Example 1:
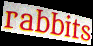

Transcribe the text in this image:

rabbits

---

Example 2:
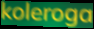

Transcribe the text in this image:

koleroga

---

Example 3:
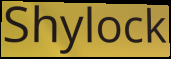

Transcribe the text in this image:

Shylock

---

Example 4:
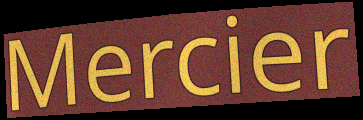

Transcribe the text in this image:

Mercier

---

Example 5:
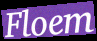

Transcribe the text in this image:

Floem